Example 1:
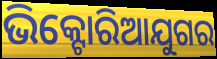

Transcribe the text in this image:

ଭିକ୍ଟୋରିଆଯୁଗର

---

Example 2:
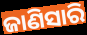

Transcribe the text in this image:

ଜାଣିସାରି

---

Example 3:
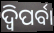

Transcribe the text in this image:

ଦ୍ଵିପର୍ବା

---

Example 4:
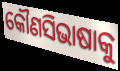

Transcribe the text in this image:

କୌଣସିଭାଷାକୁ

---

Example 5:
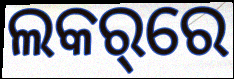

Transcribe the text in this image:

ଲକର୍‌ରେ